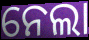
ନେଲା